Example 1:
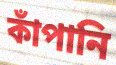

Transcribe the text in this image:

কাঁপানি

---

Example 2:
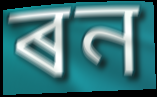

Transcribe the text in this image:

ৰন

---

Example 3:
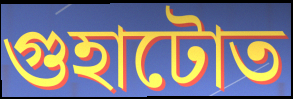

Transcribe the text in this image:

গুহাটোত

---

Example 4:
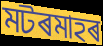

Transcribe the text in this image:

মটৰমাহৰ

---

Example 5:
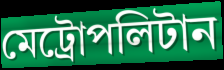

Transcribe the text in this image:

মেট্ৰোপলিটান